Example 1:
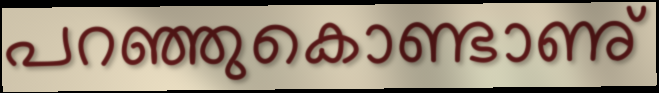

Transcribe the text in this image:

പറഞ്ഞുകൊണ്ടാണു്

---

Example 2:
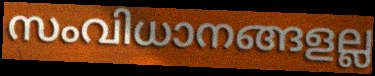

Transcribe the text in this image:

സംവിധാനങ്ങളല്ല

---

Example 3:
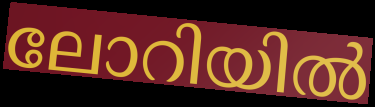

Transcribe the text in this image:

ലോറിയിൽ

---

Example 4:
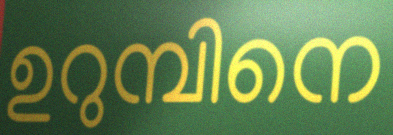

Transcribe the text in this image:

ഉറുമ്പിനെ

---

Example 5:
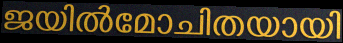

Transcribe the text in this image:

ജയിൽമോചിതയായി